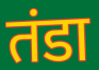
तंडा